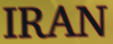
IRAN